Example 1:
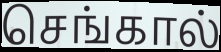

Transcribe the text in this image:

செங்கால்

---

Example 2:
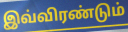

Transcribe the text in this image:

இவ்விரண்டும்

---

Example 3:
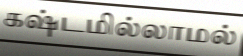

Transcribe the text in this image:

கஷ்டமில்லாமல்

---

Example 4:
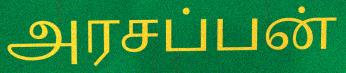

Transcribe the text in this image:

அரசப்பன்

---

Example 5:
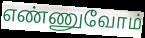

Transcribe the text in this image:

எண்ணுவோம்